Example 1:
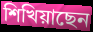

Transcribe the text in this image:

শিখিয়াছেন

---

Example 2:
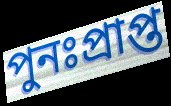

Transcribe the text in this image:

পুনঃপ্রাপ্ত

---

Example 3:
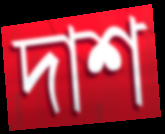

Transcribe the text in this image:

দাশ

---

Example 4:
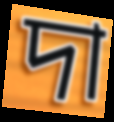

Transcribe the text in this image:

দা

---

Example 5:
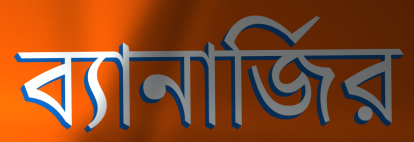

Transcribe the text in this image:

ব্যানার্জির